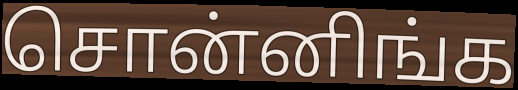
சொன்னிங்க